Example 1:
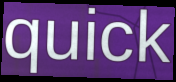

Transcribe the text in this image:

quick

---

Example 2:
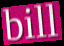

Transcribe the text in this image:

bill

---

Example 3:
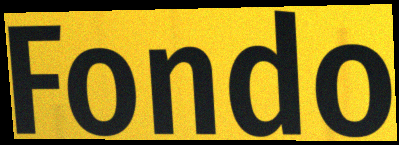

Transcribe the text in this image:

Fondo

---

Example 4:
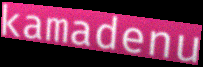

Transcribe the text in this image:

kamadenu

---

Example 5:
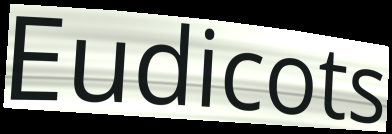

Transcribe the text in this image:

Eudicots